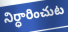
నిర్ధారించుట